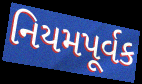
નિયમપૂર્વક